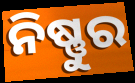
ନିଷ୍ଣୁର